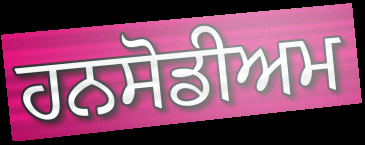
ਹਨਸੋਡੀਅਮ